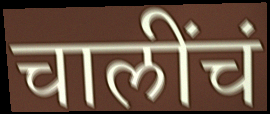
चालींचं